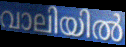
വാലിയിൽ